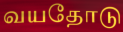
வயதோடு